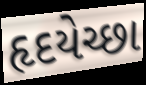
હૃદયેચ્છા